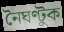
নৈঘণ্টুক